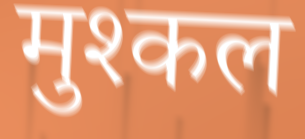
मुश्कल